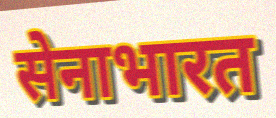
सेनाभारत